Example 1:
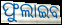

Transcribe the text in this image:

ଫୁଲାଇବ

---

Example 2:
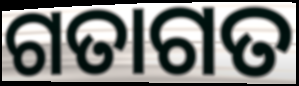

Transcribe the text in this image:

ଗତାଗତ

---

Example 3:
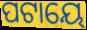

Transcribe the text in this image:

ପଟାୟେ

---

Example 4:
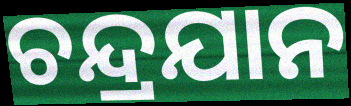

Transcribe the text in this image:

ଚନ୍ଦ୍ରଯାନ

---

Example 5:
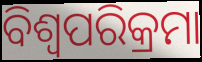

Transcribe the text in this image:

ବିଶ୍ୱପରିକ୍ରମା